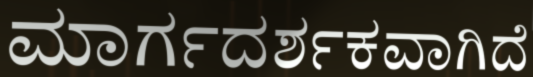
ಮಾರ್ಗದರ್ಶಕವಾಗಿದೆ